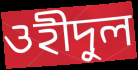
ওহীদুল